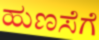
ಹುಣಸೆಗೆ